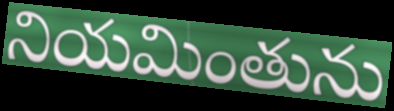
నియమింతును